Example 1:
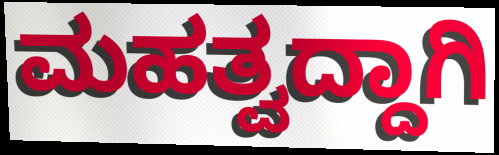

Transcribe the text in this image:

ಮಹತ್ವದ್ದಾಗಿ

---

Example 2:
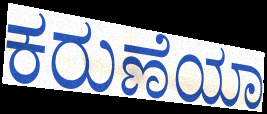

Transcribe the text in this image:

ಕರುಣೆಯಾ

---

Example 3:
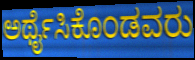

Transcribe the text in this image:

ಅರ್ಥೈಸಿಕೊಂಡವರು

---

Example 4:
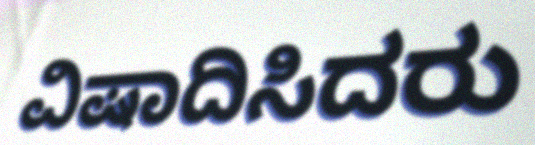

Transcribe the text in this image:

ವಿಷಾದಿಸಿದರು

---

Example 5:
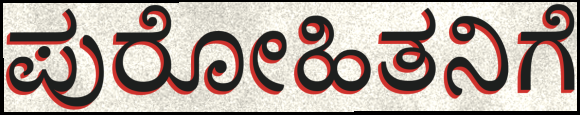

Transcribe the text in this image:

ಪುರೋಹಿತನಿಗೆ